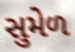
સુમેળ